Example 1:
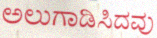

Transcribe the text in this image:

ಅಲುಗಾಡಿಸಿದವು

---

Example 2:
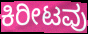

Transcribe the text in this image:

ಕಿರೀಟವು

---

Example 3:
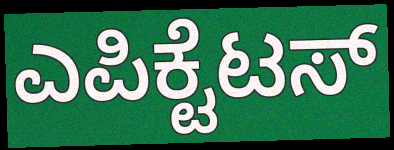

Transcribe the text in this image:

ಎಪಿಕ್ಟೆಟಸ್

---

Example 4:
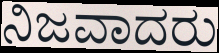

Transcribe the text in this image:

ನಿಜವಾದರು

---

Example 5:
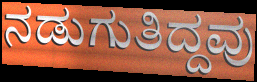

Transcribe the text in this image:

ನಡುಗುತಿದ್ದವು